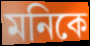
মনিকে